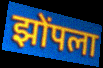
झोंपला